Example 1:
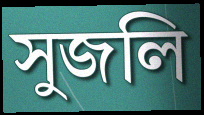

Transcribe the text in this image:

সুজলি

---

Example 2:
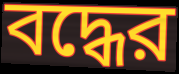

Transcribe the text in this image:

বদ্ধের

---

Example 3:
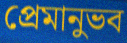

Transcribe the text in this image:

প্রেমানুভব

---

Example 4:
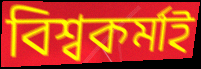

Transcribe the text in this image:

বিশ্বকর্মাই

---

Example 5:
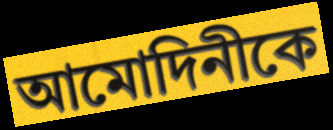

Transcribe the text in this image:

আমোদিনীকে